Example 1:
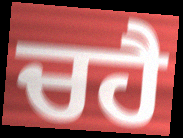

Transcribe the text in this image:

ਚਹੈ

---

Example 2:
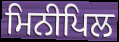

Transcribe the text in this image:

ਮਿਨੀਪਿਲ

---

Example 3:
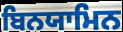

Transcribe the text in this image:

ਬਿਨਯਾਮਿਨ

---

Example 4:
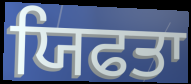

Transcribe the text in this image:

ਯਿਫਤਾ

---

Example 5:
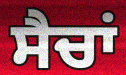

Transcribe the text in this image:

ਸੈਚਾਂ